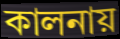
কালনায়